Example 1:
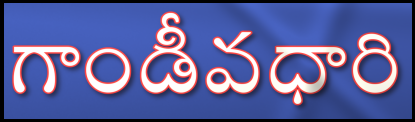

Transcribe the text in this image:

గాండీవధారి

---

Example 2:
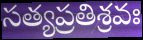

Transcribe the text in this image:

సత్యప్రతిశ్రవః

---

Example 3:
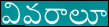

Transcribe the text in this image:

వివరాలూ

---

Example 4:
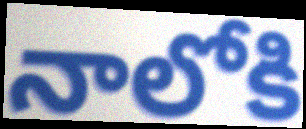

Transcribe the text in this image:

నాలోకి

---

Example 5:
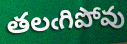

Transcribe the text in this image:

తలఁగిపోవు